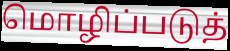
மொழிப்படுத்